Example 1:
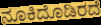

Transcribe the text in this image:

ನೂಕಿದೊಡಿರದೆ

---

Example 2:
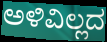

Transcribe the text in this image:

ಅಳಿವಿಲ್ಲದ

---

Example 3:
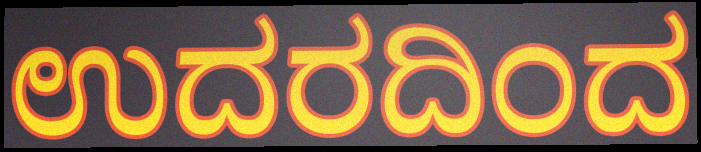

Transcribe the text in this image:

ಉದರದಿಂದ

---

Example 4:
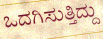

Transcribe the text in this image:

ಒದಗಿಸುತ್ತಿದ್ದು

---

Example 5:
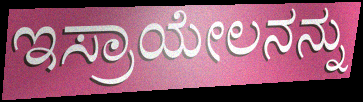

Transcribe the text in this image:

ಇಸ್ರಾಯೇಲನನ್ನು